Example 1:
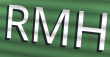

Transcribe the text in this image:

RMH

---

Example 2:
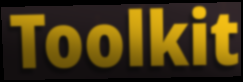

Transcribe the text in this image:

Toolkit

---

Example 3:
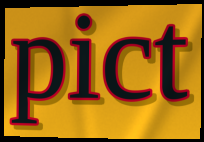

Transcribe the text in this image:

pict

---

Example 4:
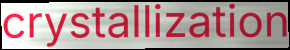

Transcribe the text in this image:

crystallization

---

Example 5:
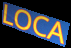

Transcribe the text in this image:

LOCA